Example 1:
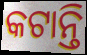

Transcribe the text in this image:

କଟାନ୍ତି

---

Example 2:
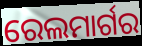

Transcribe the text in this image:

ରେଲମାର୍ଗର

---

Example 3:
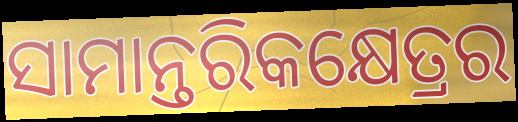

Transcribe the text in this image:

ସାମାନ୍ତରିକକ୍ଷେତ୍ରର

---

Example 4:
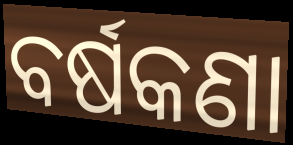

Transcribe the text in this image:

ବର୍ଷକଣା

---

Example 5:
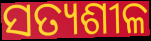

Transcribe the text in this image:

ସତ୍ୟଶୀଳ